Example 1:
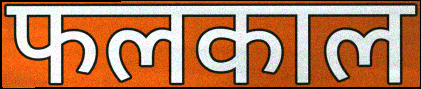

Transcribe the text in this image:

फलकाल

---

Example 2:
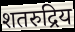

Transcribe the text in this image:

शतरुद्रिय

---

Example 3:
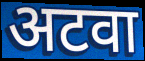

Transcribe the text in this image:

अटवा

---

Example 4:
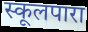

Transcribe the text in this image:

स्कूलपारा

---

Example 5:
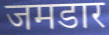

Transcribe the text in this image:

जमडार